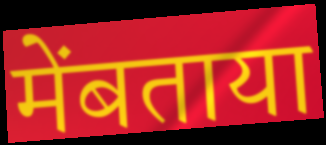
मेंबताया